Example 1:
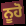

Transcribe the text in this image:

ਨੂਹੋ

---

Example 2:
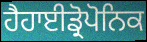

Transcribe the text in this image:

ਹੈਹਾਈਡ੍ਰੋਪੋਨਿਕ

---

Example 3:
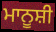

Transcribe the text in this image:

ਮਾਨੂਸ਼ੀ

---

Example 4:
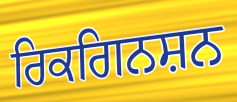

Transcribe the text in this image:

ਰਿਕਗਿਨਸ਼ਨ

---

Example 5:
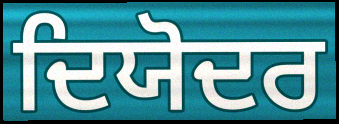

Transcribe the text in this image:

ਦਿਯੋਦਰ